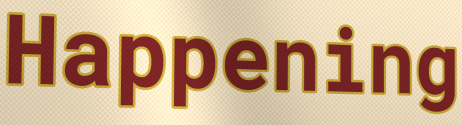
Happening